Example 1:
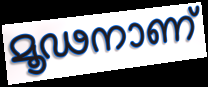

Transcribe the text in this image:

മൂഢനാണ്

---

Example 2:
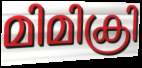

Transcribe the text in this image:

മിമിക്രി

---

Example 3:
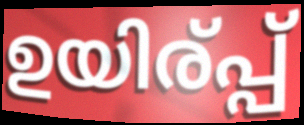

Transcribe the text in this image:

ഉയിര്പ്പ്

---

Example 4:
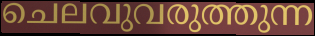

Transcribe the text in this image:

ചെലവുവരുത്തുന്ന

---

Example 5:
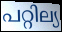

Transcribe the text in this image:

പറ്റില്യ